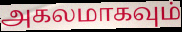
அகலமாகவும்